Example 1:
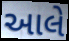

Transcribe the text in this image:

આલે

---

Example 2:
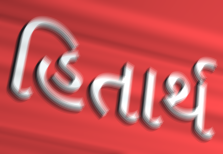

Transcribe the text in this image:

હિતાર્થ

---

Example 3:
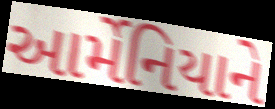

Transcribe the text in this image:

આર્મેનિયાને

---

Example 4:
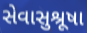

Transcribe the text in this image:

સેવાસુશ્રૂષા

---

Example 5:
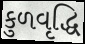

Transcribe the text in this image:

કુળવૃદ્ધિ